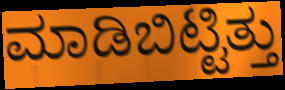
ಮಾಡಿಬಿಟ್ಟಿತ್ತು